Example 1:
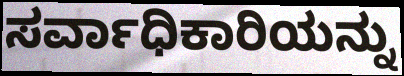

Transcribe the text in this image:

ಸರ್ವಾಧಿಕಾರಿಯನ್ನು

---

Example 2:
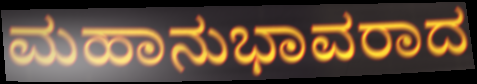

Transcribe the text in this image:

ಮಹಾನುಭಾವರಾದ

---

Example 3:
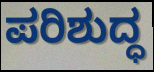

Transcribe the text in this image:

ಪರಿಶುದ್ಧ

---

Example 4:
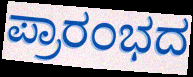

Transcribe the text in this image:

ಪ್ರಾರಂಭದ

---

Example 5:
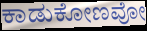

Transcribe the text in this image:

ಕಾಡುಕೋಣವೋ